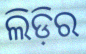
ଲିଡ଼ିର